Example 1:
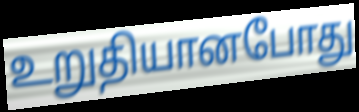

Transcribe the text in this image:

உறுதியானபோது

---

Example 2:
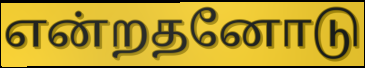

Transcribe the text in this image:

என்றதனோடு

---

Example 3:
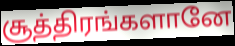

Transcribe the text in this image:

சூத்திரங்களானே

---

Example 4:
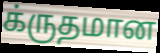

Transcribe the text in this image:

க்ருதமான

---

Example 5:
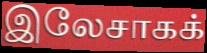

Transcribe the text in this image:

இலேசாகக்